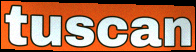
tuscan